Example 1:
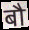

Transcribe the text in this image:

बौ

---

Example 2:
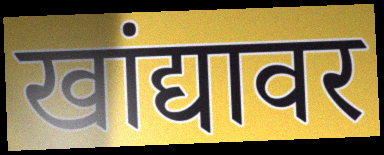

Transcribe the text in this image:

खांद्यावर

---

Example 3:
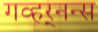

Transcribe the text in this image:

गव्हर्नन्स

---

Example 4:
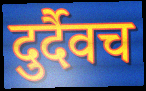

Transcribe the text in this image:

दुर्दैवच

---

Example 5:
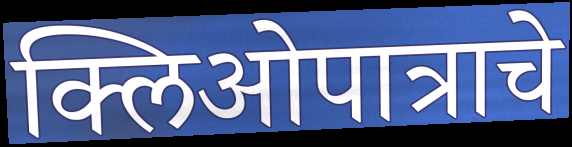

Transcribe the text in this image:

क्लिओपात्राचे